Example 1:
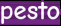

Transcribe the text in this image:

pesto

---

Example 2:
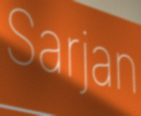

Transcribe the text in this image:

Sarjan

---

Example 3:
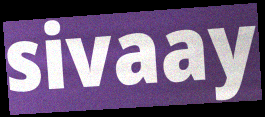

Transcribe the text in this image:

sivaay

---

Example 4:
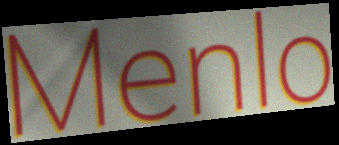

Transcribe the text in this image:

Menlo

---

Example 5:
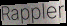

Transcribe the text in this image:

Rappler